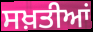
ਸਖ਼ਤੀਆਂ